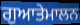
ਗੁਆਤੇਮਾਲਨ